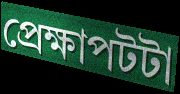
প্রেক্ষাপটটা